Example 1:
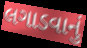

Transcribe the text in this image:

લગાડવાનું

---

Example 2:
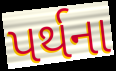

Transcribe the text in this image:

પર્થના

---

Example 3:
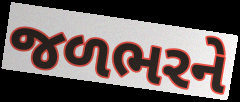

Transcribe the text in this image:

જળભરને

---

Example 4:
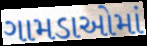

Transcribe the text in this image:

ગામડાઓમાં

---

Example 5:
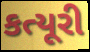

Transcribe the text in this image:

કત્યૂરી